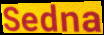
Sedna